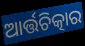
ଆର୍ତ୍ତଚିତ୍କାର